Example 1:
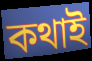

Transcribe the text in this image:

কথাই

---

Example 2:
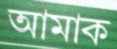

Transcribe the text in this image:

আমাক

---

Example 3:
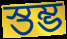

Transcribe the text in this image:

স্তম্ভ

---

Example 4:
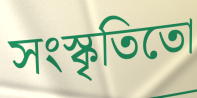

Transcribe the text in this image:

সংস্কৃতিতো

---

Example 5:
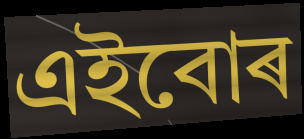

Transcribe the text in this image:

এইবোৰ